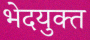
भेदयुक्त